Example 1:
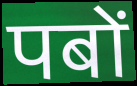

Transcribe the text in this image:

पबों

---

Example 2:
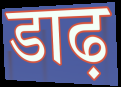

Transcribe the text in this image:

डाढ़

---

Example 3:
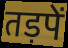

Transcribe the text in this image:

तड़पें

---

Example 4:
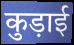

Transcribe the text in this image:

कुड़ाई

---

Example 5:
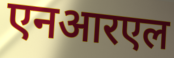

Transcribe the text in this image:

एनआरएल